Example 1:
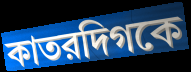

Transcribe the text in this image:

কাতরদিগকে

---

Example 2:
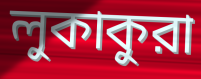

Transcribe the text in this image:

লুকাকুরা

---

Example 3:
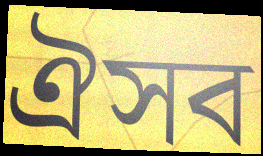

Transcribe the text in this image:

ঐসব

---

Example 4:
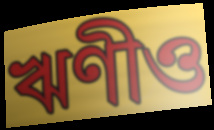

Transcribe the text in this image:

ঋণীও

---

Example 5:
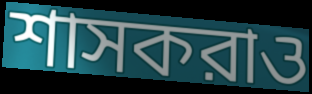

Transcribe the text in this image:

শাসকরাও